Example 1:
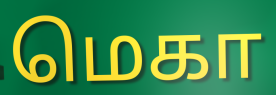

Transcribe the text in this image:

மெகா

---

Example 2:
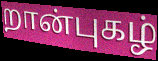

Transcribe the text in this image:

றான்புகழ்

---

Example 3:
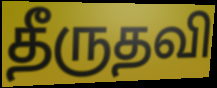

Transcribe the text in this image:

தீருதவி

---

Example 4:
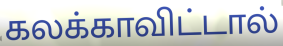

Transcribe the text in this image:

கலக்காவிட்டால்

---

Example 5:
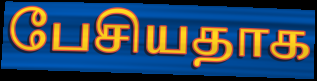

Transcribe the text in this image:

பேசியதாக